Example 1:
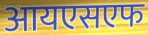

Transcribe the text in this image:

आयएसएफ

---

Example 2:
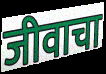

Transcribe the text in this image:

जीवाचा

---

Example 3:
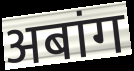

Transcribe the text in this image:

अबांग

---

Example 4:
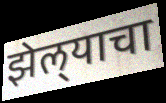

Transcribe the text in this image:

झेल्याचा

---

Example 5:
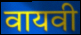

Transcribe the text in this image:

वायवी